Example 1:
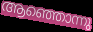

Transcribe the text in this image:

ആഞ്ഞൊന്നു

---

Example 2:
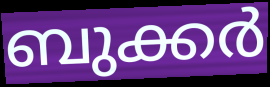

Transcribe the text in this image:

ബുക്കർ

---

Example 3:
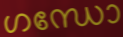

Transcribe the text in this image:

ഗന്ധോ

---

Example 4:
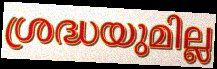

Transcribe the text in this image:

ശ്രദ്ധയുമില്ല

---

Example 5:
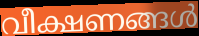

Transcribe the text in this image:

വീക്ഷണങ്ങൾ